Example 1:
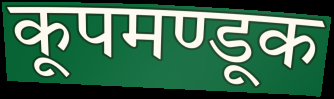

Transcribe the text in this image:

कूपमण्डूक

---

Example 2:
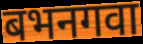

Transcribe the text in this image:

बभनगवा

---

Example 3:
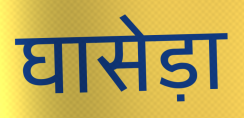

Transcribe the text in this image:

घासेड़ा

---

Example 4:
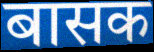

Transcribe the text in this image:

बासक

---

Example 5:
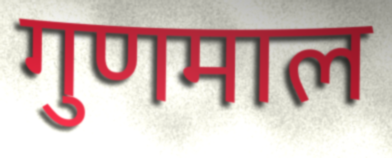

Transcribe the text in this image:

गुणमाल